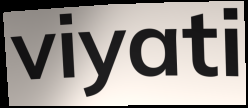
viyati